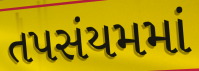
તપસંયમમાં